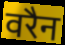
वरैन